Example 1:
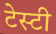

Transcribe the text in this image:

टेस्‍टी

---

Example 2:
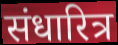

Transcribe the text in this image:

संधारित्र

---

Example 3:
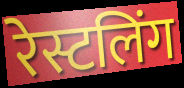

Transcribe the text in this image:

रेस्टलिंग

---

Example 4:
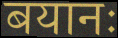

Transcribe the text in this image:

बयानः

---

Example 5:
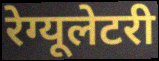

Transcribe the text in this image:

रेग्यूलेटरी